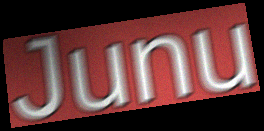
Junu